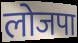
लोजपा